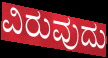
ವಿರುವುದು